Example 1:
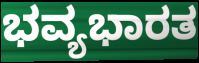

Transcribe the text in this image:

ಭವ್ಯಭಾರತ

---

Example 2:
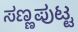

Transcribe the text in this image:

ಸಣ್ಣಪುಟ್ಟ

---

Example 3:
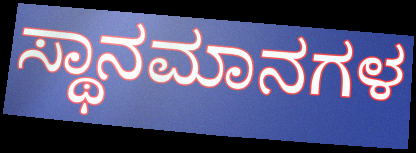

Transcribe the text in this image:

ಸ್ಥಾನಮಾನಗಳ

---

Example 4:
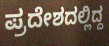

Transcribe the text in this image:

ಪ್ರದೇಶದಲ್ಲಿದ್ದ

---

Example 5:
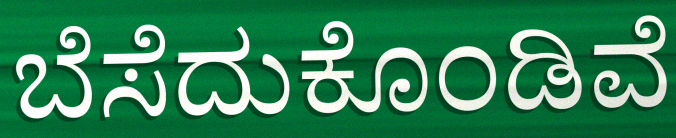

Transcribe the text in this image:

ಬೆಸೆದುಕೊಂಡಿವೆ